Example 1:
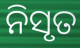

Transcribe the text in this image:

ନିସୃତ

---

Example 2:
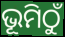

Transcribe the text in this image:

ଭୂମିଠୁଁ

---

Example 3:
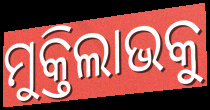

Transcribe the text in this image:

ମୁକ୍ତିଲାଭକୁ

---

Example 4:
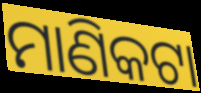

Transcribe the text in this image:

ମାଣିକଟା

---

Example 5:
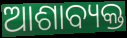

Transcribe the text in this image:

ଆଶାବ୍ୟକ୍ତ